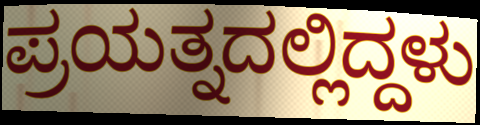
ಪ್ರಯತ್ನದಲ್ಲಿದ್ದಳು